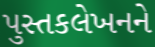
પુસ્તકલેખનને